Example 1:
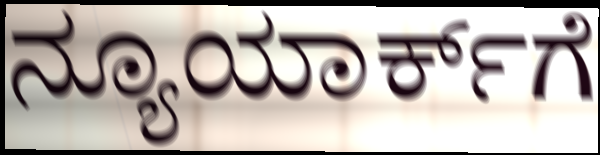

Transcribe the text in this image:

ನ್ಯೂಯಾರ್ಕ್‌ಗೆ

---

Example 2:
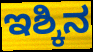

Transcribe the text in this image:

ಇಶ್ಕಿನ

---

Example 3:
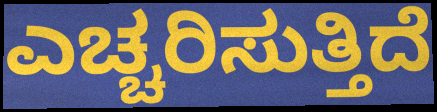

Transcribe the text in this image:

ಎಚ್ಚರಿಸುತ್ತಿದೆ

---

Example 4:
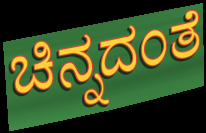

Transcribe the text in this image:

ಚಿನ್ನದಂತೆ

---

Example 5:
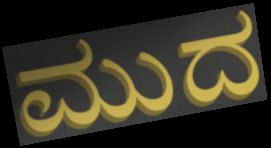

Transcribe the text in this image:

ಮುದ